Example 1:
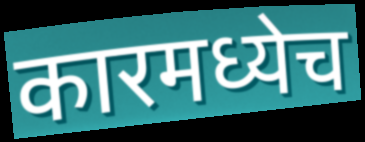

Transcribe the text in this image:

कारमध्येच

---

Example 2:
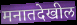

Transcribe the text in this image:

मनातदेखील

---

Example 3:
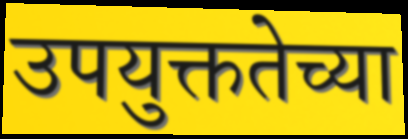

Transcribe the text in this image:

उपयुक्ततेच्या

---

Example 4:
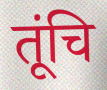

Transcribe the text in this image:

तूंचि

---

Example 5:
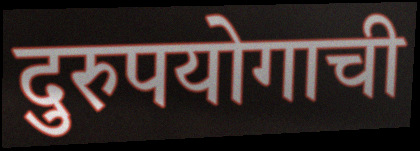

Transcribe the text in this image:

दुरुपयोगाची